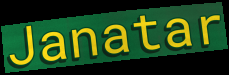
Janatar